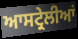
ਆਸਟ੍ਰੇਲੀਆਂ